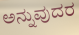
ಅನ್ನುವುದರ